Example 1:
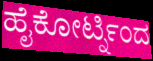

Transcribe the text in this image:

ಹೈಕೋರ್ಟ್ನಿಂದ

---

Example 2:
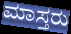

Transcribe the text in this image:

ಮಾಸ್ತರು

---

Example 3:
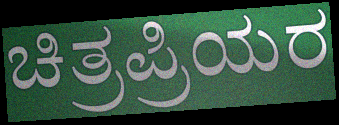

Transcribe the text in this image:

ಚಿತ್ರಪ್ರಿಯರ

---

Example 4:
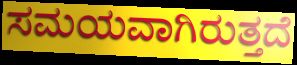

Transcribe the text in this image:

ಸಮಯವಾಗಿರುತ್ತದೆ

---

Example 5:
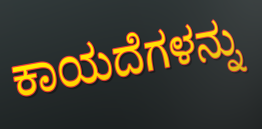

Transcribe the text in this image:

ಕಾಯದೆಗಳನ್ನು